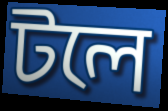
টলে